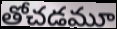
తోచడమూ